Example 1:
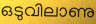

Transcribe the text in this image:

ഒടുവിലാണു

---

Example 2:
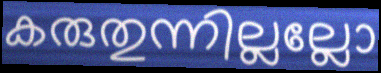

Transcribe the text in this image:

കരുതുന്നില്ലല്ലോ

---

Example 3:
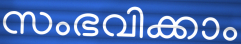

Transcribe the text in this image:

സംഭവിക്കാം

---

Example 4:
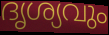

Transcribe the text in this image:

ദൃശ്യവും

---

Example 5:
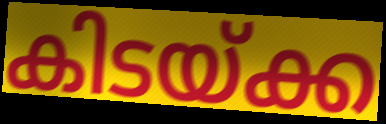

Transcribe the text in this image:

കിടയ്ക്ക